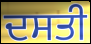
ਦਸਤੀ